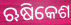
ଋଷିକେଶ